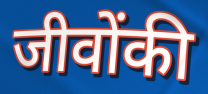
जीवोंकी